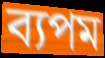
ব্যপম